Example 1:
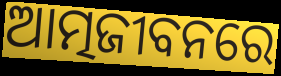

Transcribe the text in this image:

ଆତ୍ମଜୀବନରେ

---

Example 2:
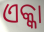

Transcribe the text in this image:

ଏକ୍କା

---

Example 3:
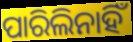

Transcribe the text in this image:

ପାରିଲିନାହିଁ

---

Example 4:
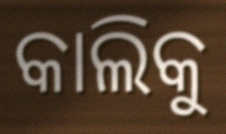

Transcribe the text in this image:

କାଲିକୁ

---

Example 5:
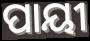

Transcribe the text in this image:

ପାୟୀ